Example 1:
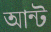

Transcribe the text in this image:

আন্ট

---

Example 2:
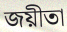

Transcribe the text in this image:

জয়ীতা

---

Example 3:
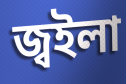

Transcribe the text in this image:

জ্বইলা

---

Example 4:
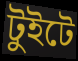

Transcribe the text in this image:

টুইটে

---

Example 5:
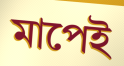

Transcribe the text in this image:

মাপেই